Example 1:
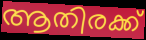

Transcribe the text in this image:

ആതിരക്ക്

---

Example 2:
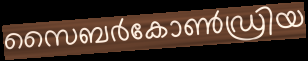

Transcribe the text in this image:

സൈബർകോൺഡ്രിയ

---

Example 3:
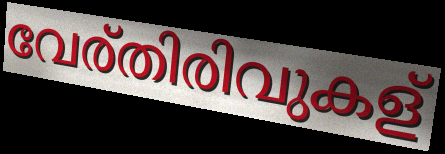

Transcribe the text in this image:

വേര്തിരിവുകള്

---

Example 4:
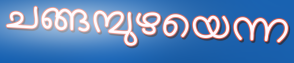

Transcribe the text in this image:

ചങ്ങമ്പുഴയെന്ന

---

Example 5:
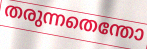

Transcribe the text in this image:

തരുന്നതെന്തോ